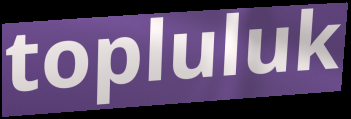
topluluk